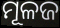
ମୂଳଜ